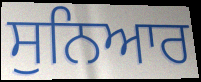
ਸੁਨਿਆਰ